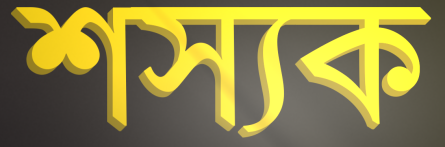
শস্যক